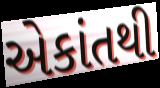
એકાંતથી